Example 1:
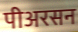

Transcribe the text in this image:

पीअरसन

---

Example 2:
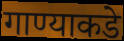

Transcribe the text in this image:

गाण्याकडे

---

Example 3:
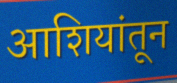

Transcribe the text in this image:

आशियांतून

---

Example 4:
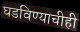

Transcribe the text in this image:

घडविण्याचीही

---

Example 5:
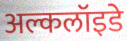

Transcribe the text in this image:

अल्कलॉइडे